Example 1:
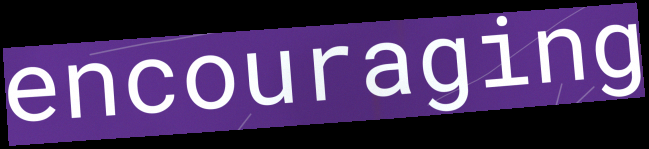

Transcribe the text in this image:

encouraging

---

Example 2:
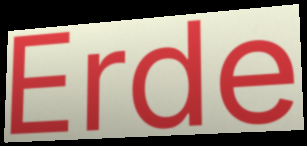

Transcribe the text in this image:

Erde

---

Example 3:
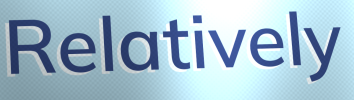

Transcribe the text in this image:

Relatively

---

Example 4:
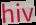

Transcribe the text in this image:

hiv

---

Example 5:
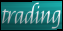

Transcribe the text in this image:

trading